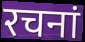
रचनां